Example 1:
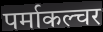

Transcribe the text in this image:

पर्माकल्चर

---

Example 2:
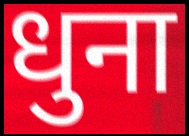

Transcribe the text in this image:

धुना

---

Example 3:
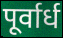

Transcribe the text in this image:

पूर्वार्ध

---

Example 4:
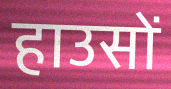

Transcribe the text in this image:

हाउसों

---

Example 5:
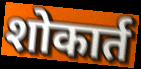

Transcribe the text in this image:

शोकार्त